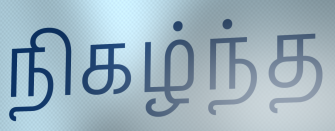
நிகழ்ந்த